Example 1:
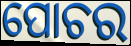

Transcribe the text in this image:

ପୋଚର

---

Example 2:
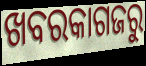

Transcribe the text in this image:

ଖବରକାଗଜରୁ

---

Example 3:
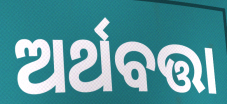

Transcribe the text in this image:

ଅର୍ଥବତ୍ତା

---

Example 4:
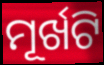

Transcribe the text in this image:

ମୂର୍ଖଟି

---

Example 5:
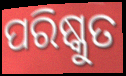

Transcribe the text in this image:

ପରିଷ୍କୁତ